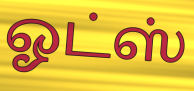
ஓட்ஸ்